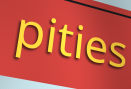
pities